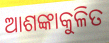
ଆଶଙ୍କାକୁଳିତ